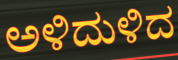
ಅಳಿದುಳಿದ